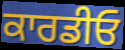
ਕਾਰਡੀਓ